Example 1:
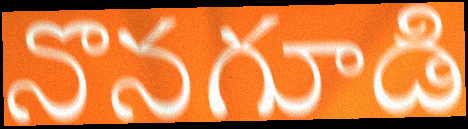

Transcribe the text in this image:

నొనగూడి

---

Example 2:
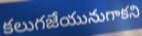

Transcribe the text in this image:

కలుగజేయునుగాకని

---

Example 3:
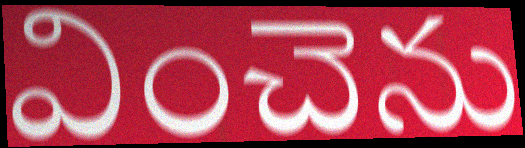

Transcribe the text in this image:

వించెను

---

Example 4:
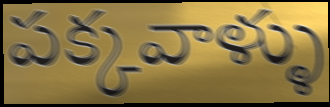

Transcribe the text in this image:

పక్కవాళ్ళు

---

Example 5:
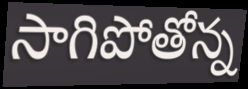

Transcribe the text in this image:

సాగిపోతోన్న